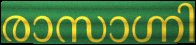
രാസാഗ്നി